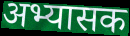
अभ्यासक